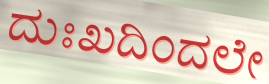
ದುಃಖದಿಂದಲೇ